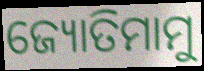
ଜ୍ୟୋତିମାମୁ